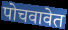
पोचवावेत